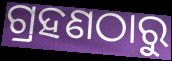
ଗ୍ରହଣଠାରୁ